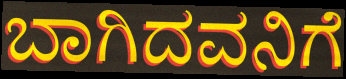
ಬಾಗಿದವನಿಗೆ